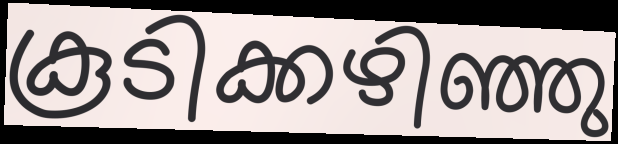
കൂടിക്കഴിഞ്ഞു